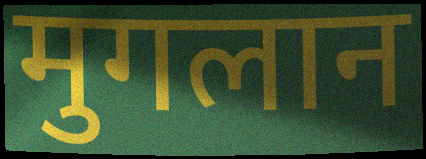
मुगलान